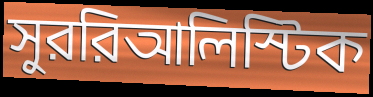
সুররিআলিস্টিক